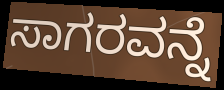
ಸಾಗರವನ್ನೆ